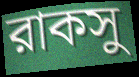
রাকসু